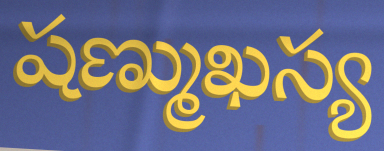
షణ్ముఖస్య